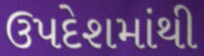
ઉપદેશમાંથી